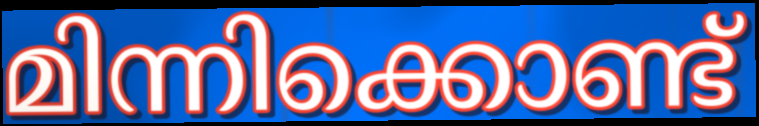
മിന്നിക്കൊണ്ട്